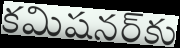
కమిషనర్‌కు